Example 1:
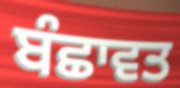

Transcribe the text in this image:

ਬੰਛਾਵਤ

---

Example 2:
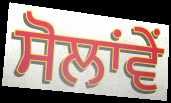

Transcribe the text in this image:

ਸੋਲਾਂਵੇਂ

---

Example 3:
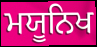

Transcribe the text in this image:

ਮਯੂਨਿਖ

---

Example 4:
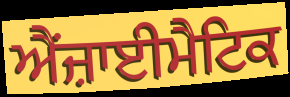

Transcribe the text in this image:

ਐਂਜ਼ਾਈਮੈਟਿਕ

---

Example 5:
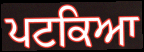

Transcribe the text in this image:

ਪਟਕਿਆ